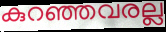
കുറഞ്ഞവരല്ല